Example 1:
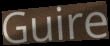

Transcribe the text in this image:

Guire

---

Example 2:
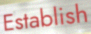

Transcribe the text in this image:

Establish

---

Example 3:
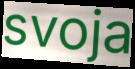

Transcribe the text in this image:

svoja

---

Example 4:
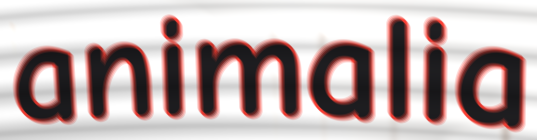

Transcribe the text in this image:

animalia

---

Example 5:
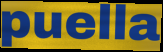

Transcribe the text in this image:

puella